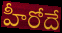
హీరోదే